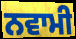
ਨਵਾਮੀ